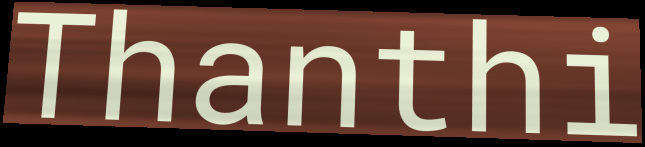
Thanthi